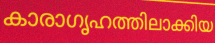
കാരാഗൃഹത്തിലാക്കിയ